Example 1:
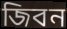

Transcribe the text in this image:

জিবন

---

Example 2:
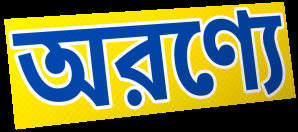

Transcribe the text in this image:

অরণ্যে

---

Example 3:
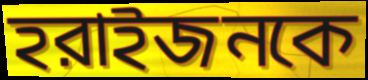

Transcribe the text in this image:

হরাইজনকে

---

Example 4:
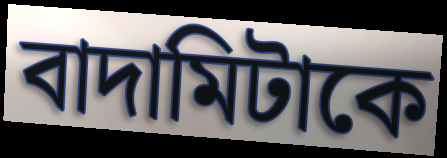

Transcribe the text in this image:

বাদামিটাকে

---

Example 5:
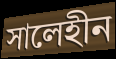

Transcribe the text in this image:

সালেহীন